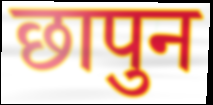
छापुन